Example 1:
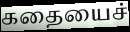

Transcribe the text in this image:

கதையைச்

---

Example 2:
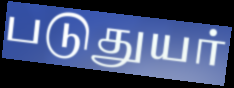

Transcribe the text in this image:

படுதுயர்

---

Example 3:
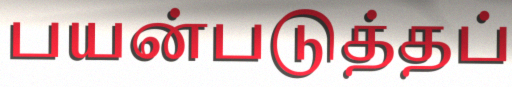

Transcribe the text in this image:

பயன்படுத்தப்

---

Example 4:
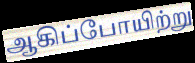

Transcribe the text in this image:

ஆகிப்போயிற்று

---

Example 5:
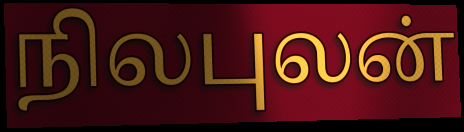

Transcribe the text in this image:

நிலபுலன்